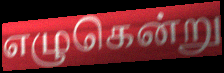
எழுகென்று